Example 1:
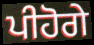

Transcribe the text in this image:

ਪੀਹੋਗੇ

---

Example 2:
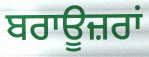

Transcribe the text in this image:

ਬਰਾਊਜ਼ਰਾਂ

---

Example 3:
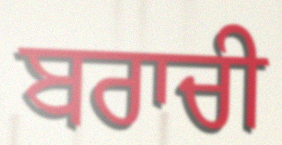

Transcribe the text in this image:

ਬਰਾਚੀ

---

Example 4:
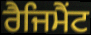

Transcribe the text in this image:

ਰੈਜਿਮੈਂਟ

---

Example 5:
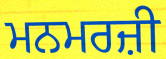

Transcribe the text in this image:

ਮਨਮਰਜ਼ੀ